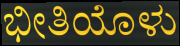
ಭೀತಿಯೊಳು